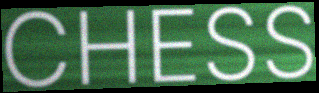
CHESS